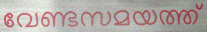
വേണ്ടസമയത്ത്